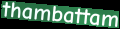
thambattam